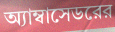
অ্যাম্বাসেডরের